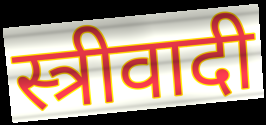
स्त्रीवादी